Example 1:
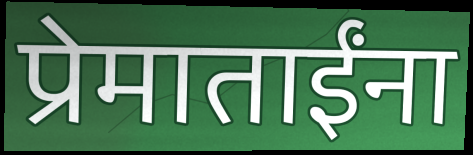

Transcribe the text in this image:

प्रेमाताईंना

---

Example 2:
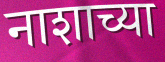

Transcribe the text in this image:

नाशाच्या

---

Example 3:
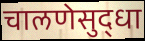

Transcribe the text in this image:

चालणेसुद्धा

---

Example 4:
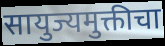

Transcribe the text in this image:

सायुज्यमुक्तीचा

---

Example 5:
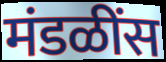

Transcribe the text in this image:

मंडळींस